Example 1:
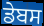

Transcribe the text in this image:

ਡੇਬਸ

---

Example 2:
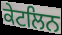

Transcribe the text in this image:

ਕੇਟਲਿਨ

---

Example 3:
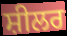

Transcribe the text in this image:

ਸ਼ੀਲਰ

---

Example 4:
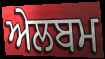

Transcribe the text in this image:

ਅੇਲਬਮ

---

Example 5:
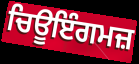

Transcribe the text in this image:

ਚਿਊਇੰਗਮਜ਼